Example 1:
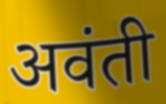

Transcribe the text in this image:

अवंती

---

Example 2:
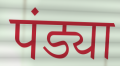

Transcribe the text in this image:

पंड्या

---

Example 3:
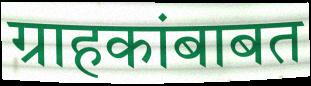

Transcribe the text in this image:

ग्राहकांबाबत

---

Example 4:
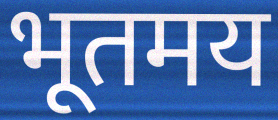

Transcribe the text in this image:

भूतमय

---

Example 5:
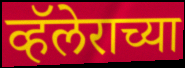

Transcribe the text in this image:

व्हॅलेराच्या